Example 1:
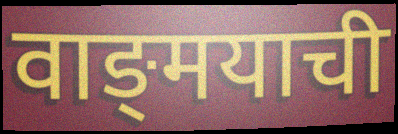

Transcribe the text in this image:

वाङ्मयाची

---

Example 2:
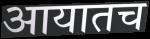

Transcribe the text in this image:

आयातच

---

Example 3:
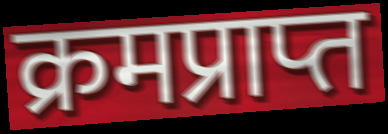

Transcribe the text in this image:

क्रमप्राप्‍त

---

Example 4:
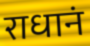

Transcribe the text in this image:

राधानं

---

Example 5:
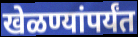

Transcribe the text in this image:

खेळण्यांपर्यंत